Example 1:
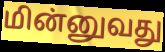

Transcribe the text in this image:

மின்னுவது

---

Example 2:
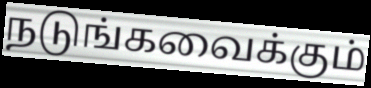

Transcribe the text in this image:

நடுங்கவைக்கும்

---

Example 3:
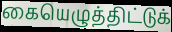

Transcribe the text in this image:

கையெழுத்திட்டுக்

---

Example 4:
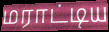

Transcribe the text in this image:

மராட்டிய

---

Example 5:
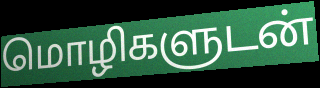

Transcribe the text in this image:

மொழிகளுடன்